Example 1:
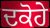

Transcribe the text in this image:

ਦਕੋਹੇ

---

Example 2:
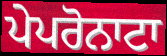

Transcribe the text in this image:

ਪੇਪਰੋਨਾਟਾ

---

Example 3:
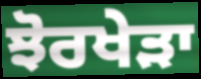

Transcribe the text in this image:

ਝੋਰਖੇੜਾ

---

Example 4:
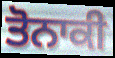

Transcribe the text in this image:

ਤੋਨਾਕੀ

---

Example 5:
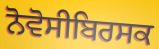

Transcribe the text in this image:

ਨੋਵੋਸੀਬਿਰਸਕ